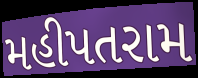
મહીપતરામ